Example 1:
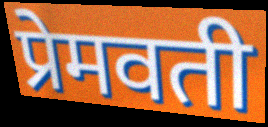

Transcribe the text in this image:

प्रेमवती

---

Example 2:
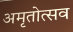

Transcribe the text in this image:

अमृतोत्सव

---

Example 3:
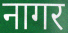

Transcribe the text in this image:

नागर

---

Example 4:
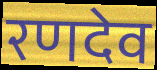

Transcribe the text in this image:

रणदेव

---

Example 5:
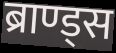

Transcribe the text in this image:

ब्राण्‍ड्स